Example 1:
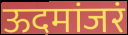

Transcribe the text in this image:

ऊदमांजरं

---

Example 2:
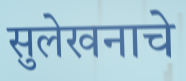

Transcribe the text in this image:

सुलेखनाचे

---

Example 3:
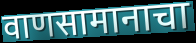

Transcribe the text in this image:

वाणसामानाचा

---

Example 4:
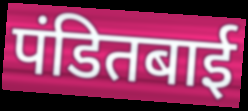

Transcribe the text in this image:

पंडितबाई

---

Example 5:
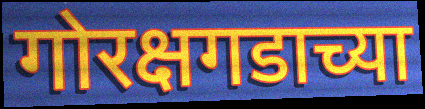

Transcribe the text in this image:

गोरक्षगडाच्या